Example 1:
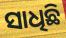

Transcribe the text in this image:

ସାଧିଛି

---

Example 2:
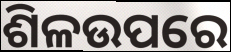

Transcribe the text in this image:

ଶିଳଉପରେ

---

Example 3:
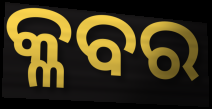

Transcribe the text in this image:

କ୍ଳବର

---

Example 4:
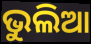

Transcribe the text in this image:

ଭୁଲିଆ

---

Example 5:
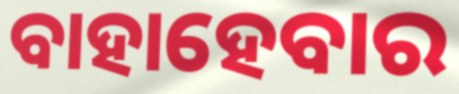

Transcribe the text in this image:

ବାହାହେବାର